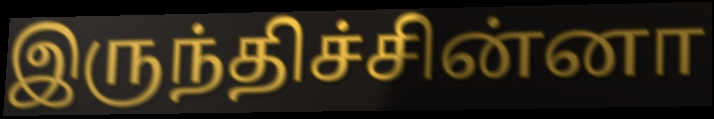
இருந்திச்சின்னா